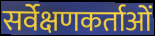
सर्वेक्षणकर्ताओं